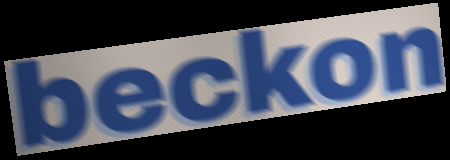
beckon